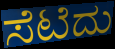
ಸೆಟೆದು